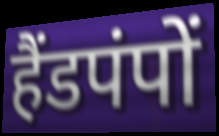
हैंडपंपों